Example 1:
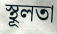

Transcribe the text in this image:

স্থূলতা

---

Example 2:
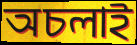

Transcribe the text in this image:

অচলাই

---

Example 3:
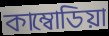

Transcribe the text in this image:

কাম্বোডিয়া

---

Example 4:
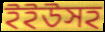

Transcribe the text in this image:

ইইউসহ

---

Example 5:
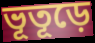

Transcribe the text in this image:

ভূতূড়ে